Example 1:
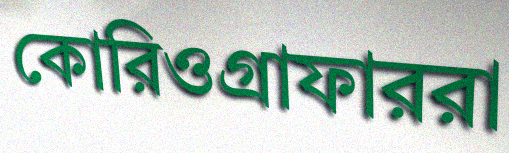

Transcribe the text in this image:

কোরিওগ্রাফাররা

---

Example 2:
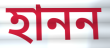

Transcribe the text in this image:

হানন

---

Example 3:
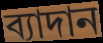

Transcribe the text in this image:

ব্যাদান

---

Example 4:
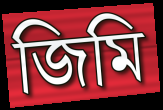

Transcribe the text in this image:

জিমি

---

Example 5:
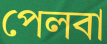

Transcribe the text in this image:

পেলবা